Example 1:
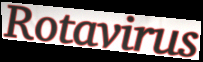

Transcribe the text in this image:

Rotavirus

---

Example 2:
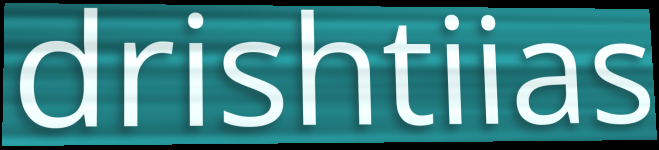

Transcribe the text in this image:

drishtiias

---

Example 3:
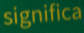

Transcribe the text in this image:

significa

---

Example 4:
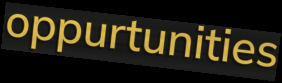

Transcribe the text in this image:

oppurtunities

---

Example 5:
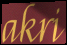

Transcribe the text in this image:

akri